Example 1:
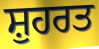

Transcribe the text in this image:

ਸ਼ੁਹਰਤ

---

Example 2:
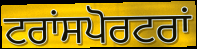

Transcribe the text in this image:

ਟਰਾਂਸਪੋਰਟਰਾਂ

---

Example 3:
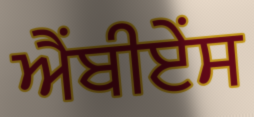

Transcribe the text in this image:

ਐਂਬੀਏਂਸ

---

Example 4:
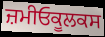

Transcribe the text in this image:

ਜ਼ਮੀਓਕੂਲਕਸ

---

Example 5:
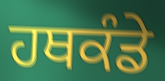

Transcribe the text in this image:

ਹਥਕੰਡੇ